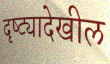
दृष्ट्यादेखील